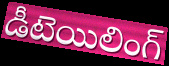
డీటెయిలింగ్